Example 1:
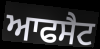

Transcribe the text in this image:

ਆਫਸੈਟ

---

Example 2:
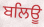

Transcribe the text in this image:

ਬਲਿਊ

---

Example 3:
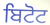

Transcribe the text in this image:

ਬਿਟੋਟ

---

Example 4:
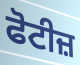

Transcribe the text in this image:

ਫੋਟੀਜ਼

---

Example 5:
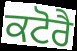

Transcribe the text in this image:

ਕਟੋਰੈ